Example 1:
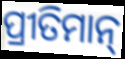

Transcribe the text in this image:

ପ୍ରୀତିମାନ୍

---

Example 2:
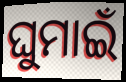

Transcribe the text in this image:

ଘୁମାଇଁ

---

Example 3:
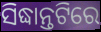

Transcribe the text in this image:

ସିଦ୍ଧାନ୍ତଟିରେ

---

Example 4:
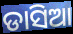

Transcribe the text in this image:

ଡାସିଆ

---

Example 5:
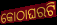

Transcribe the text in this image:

କୋଠାଘରଟି